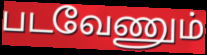
படவேணும்